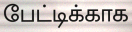
பேட்டிக்காக